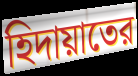
হিদায়াতের